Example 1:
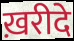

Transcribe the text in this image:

ख़रीदे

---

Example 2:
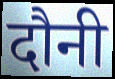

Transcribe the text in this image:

दौनी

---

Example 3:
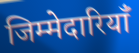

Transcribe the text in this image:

जिम्मेदारियॉं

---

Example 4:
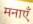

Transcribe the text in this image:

मनाएँ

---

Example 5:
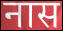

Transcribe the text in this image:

नास